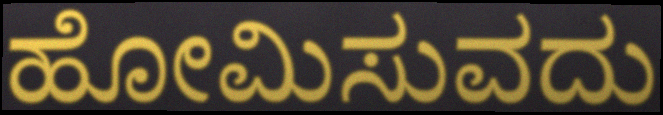
ಹೋಮಿಸುವದು